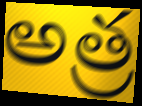
అత్ర